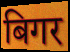
बिगर